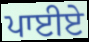
ਪਾਈਏ